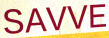
SAVVE